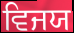
ਵਿਜਯ